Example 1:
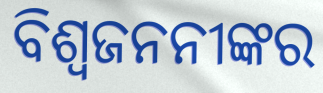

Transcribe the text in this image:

ବିଶ୍ୱଜନନୀଙ୍କର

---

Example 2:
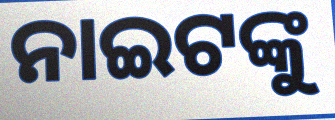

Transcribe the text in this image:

ନାଇଟଙ୍କୁ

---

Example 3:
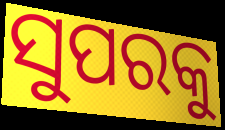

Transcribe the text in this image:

ସୁପରକୁ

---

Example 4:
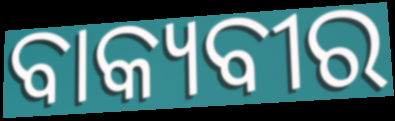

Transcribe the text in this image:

ବାକ୍ୟବୀର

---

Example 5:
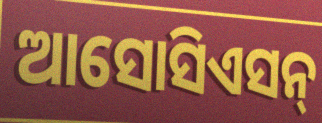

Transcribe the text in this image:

ଆସୋସିଏସନ୍